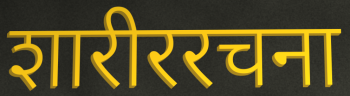
शारीररचना